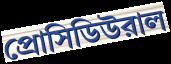
প্রোসিডিউরাল